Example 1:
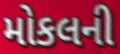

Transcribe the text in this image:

મોકલની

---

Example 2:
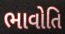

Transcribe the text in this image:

ભાવોતિ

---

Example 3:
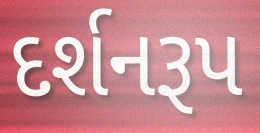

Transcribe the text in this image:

દર્શનરૂપ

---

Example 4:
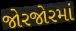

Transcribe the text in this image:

જોરજોરમાં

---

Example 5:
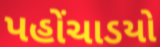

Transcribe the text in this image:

પહોંચાડયો